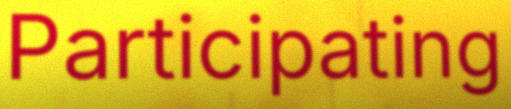
Participating